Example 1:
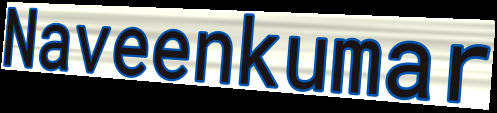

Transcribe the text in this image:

Naveenkumar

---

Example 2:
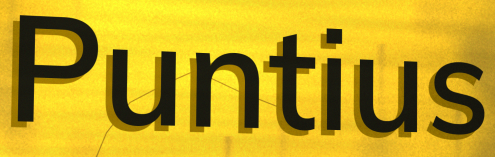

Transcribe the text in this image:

Puntius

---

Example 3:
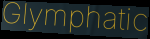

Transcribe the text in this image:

Glymphatic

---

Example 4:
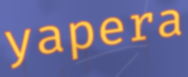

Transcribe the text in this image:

yapera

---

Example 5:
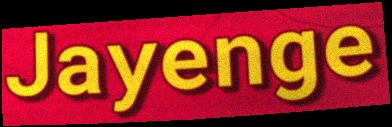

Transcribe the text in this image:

Jayenge